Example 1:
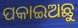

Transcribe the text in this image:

ପକାଇଅଛୁ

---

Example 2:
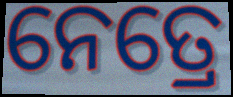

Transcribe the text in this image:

ନେତ୍ରେ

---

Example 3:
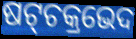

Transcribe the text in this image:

ଷଟ୍‌ଚକ୍ରଭେଦ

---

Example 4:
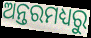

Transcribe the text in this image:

ଅନ୍ତରମଧ୍ୟରୁ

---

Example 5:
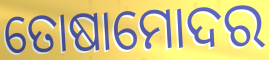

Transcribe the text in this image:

ତୋଷାମୋଦର